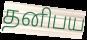
தனிபய